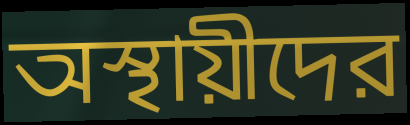
অস্থায়ীদের